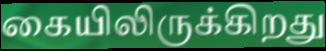
கையிலிருக்கிறது